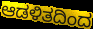
ಆಡಳಿತದಿಂದ